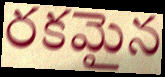
రకమైన